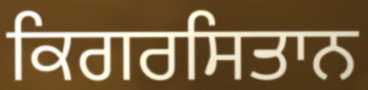
ਕਿਗਰਸਿਤਾਨ